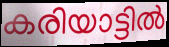
കരിയാട്ടിൽ